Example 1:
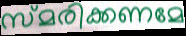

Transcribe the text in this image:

സ്മരിക്കണമേ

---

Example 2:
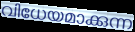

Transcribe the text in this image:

വിധേയമാക്കുന്ന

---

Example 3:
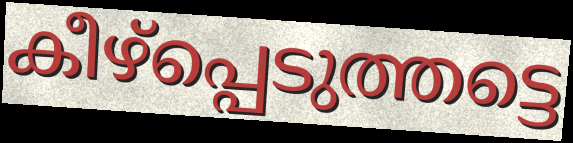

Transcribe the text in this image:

കീഴ്പ്പെടുത്തട്ടെ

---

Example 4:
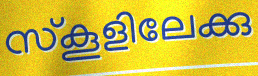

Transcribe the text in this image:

സ്കൂളിലേക്കു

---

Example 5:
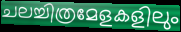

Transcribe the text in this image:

ചലച്ചിത്രമേളകളിലും